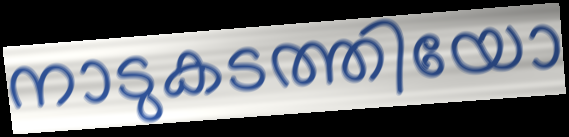
നാടുകടത്തിയോ